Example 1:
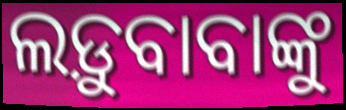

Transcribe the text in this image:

ଲଡ଼ୁବାବାଙ୍କୁ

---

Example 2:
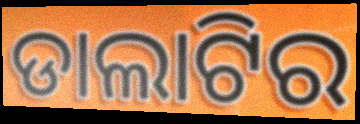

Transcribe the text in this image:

ଡାଲାଟିର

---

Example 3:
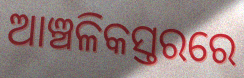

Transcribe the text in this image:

ଆଞ୍ଚଳିକସ୍ତରରେ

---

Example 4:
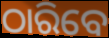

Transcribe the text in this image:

ଠାରିବେ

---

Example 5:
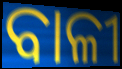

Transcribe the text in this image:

ବାଳୀ